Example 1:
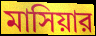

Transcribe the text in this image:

মাসিয়ার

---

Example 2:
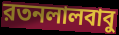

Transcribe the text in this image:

রতনলালবাবু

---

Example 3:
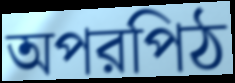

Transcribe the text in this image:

অপরপিঠ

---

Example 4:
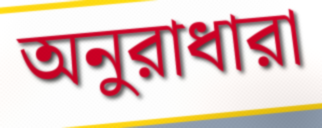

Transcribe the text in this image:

অনুরাধারা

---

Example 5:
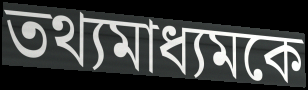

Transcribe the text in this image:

তথ্যমাধ্যমকে